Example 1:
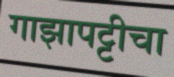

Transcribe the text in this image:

गाझापट्टीचा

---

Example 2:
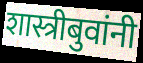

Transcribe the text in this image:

शास्त्रीबुवांनी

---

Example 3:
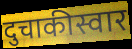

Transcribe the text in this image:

दुचाकीस्वार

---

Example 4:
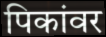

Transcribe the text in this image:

पिकांवर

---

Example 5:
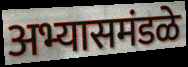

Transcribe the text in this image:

अभ्यासमंडळे